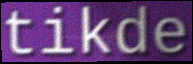
tikde